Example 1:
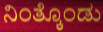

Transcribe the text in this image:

ನಿಂತ್ಕೊಂಡು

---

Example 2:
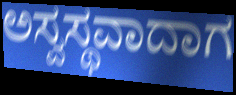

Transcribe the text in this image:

ಅಸ್ವಸ್ಥವಾದಾಗ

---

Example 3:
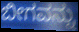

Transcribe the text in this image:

ಬೀಗವನ್ನು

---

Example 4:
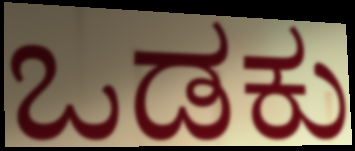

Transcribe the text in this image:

ಒಡಕು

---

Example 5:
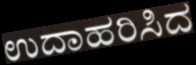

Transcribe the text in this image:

ಉದಾಹರಿಸಿದ